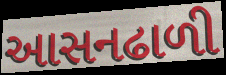
આસનઢાળી